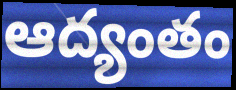
ఆద్యంతం